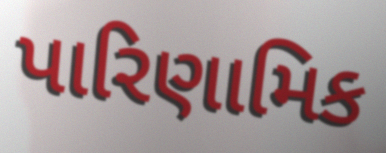
પારિણામિક